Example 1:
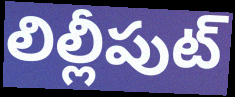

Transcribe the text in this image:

లిల్లీపుట్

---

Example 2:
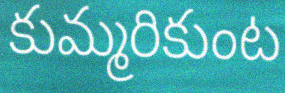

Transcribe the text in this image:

కుమ్మరికుంట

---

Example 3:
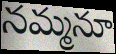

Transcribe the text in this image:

నమ్మనూ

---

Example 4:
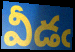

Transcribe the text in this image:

వీడఁ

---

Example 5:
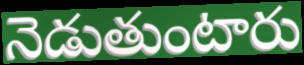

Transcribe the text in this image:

నెడుతుంటారు